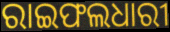
ରାଇଫଲଧାରୀ